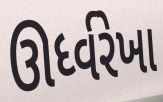
ઊર્ધ્વરેખા